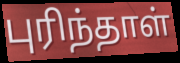
புரிந்தாள்